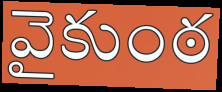
వైకుంఠ